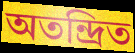
অতন্দ্রিত